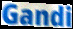
Gandi